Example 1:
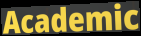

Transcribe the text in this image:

Academic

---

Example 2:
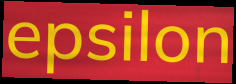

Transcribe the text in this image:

epsilon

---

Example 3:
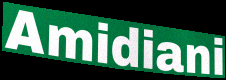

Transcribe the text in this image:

Amidiani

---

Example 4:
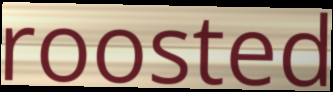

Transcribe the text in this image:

roosted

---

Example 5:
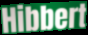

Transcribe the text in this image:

Hibbert